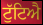
ਟੁੱਟਿਐ